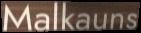
Malkauns